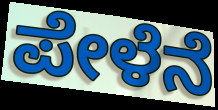
ಪೇಳೆನೆ